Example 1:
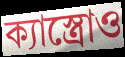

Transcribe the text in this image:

ক্যাস্ত্রোও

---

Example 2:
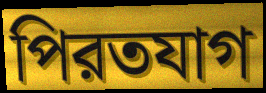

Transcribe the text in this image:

পিরতযাগ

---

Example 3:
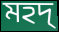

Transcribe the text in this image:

মহদ্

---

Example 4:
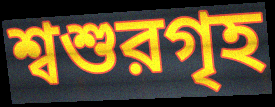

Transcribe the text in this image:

শ্বশুরগৃহ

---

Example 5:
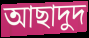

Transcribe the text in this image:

আছাদুদ